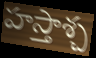
హస్తాశ్చ